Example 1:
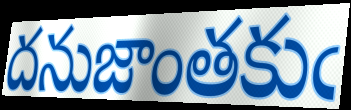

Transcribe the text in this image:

దనుజాంతకుఁ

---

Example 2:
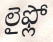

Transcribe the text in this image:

లైఫ్లో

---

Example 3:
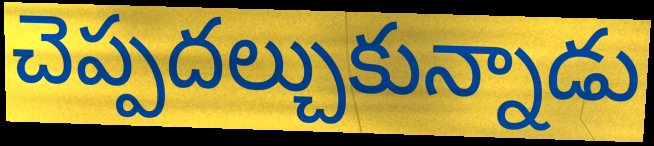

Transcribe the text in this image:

చెప్పదల్చుకున్నాడు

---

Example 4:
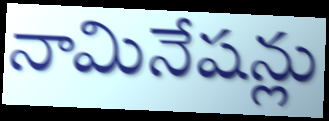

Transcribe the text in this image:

నామినేషన్లు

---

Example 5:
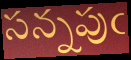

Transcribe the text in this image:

సన్నపుఁ